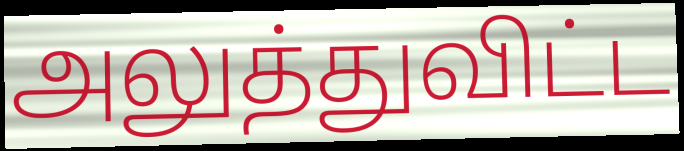
அலுத்துவிட்ட